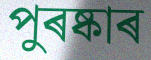
পুৰষ্কাৰ